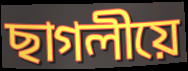
ছাগলীয়ে